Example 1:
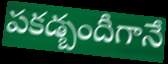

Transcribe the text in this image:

పకడ్బందీగానే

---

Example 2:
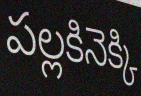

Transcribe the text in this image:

పల్లకినెక్కి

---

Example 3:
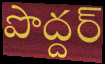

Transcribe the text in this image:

పొద్దర్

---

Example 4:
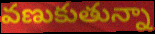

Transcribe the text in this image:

వణుకుతున్నా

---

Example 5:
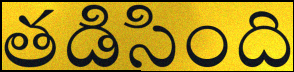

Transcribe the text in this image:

తడిసింది